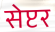
सेप्टर